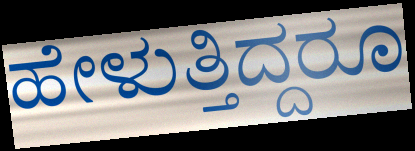
ಹೇಳುತ್ತಿದ್ದರೂ